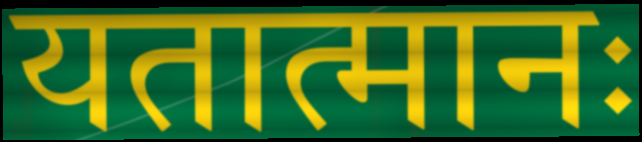
यतात्मानः